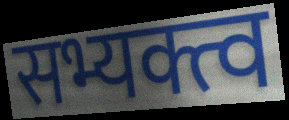
सभ्यक्त्व